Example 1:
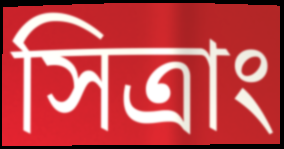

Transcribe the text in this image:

সিত্রাং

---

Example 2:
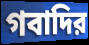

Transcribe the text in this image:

গবাদির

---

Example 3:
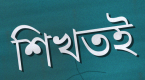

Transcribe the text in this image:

শিখতই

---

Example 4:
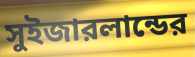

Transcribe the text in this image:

সুইজারলান্ডের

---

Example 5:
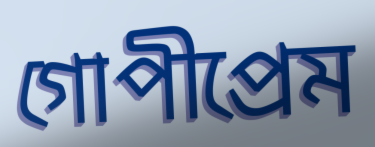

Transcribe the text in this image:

গোপীপ্রেম